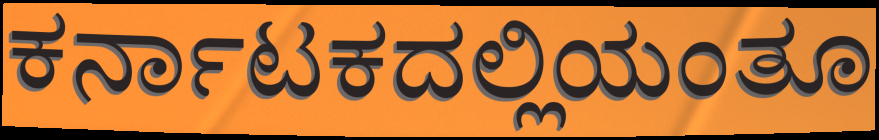
ಕರ್ನಾಟಕದಲ್ಲಿಯಂತೂ